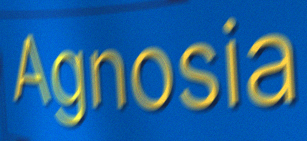
Agnosia